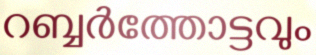
റബ്ബർത്തോട്ടവും